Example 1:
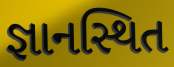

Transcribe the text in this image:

જ્ઞાનસ્થિત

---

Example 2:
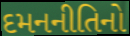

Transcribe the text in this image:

દમનનીતિનો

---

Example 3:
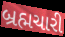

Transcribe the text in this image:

બ્રહ્મચારી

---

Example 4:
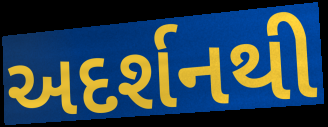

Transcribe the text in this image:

અદર્શનથી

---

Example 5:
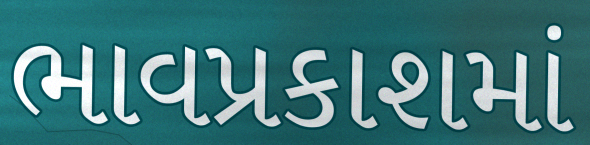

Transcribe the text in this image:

ભાવપ્રકાશમાં